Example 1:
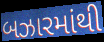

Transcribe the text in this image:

બઝારમાંથી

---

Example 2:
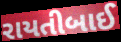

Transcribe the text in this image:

રાયતીબાઈ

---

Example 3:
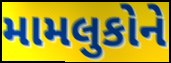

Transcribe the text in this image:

મામલુકોને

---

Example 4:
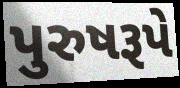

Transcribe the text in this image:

પુરુષરૂપે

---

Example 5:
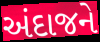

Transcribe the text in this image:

અંદાજને